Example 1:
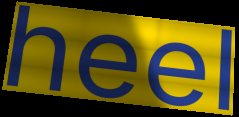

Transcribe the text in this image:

heel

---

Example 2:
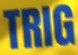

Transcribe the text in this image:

TRIG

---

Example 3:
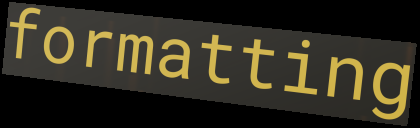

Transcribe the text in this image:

formatting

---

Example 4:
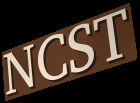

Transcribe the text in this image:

NCST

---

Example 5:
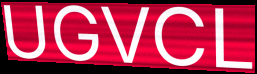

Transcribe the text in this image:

UGVCL